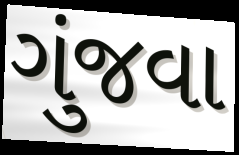
ગુંજવા